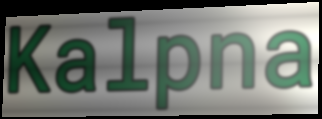
Kalpna